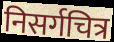
निसर्गचित्र